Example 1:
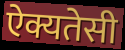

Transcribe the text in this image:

ऐक्यतेसी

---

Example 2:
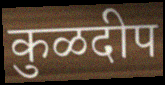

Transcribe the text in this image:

कुळदीप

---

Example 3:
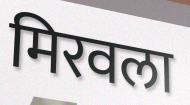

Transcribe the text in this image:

मिरवला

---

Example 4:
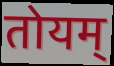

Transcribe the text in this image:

तोयम्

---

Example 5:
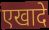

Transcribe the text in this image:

एखादे